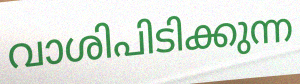
വാശിപിടിക്കുന്ന